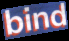
bind